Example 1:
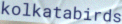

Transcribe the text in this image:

kolkatabirds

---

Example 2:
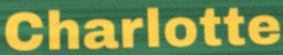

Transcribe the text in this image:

Charlotte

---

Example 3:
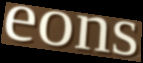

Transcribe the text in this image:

eons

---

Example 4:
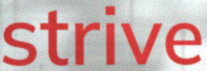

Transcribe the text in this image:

strive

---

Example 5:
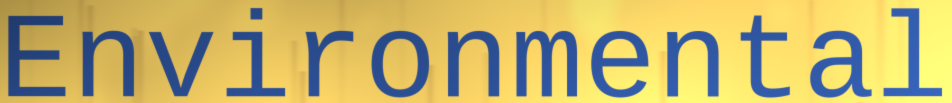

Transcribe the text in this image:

Environmental